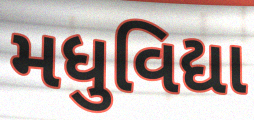
મધુવિદ્યા